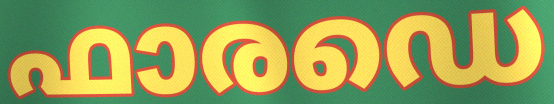
ഫാരഡെ